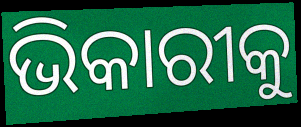
ଭିକାରୀକୁ